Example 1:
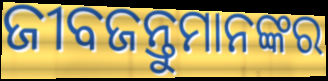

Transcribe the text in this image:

ଜୀବଜନ୍ତୁମାନଙ୍କର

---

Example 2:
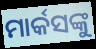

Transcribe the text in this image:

ମାର୍କସଙ୍କୁ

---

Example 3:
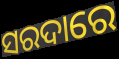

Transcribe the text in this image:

ସରଦାରେ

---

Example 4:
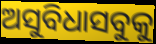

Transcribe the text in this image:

ଅସୁବିଧାସବୁକୁ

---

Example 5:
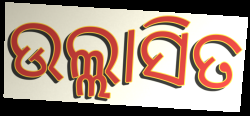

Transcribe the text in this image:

ଉଲ୍ଲାସିତ